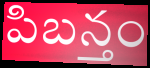
పిబన్తం